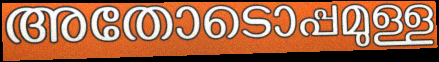
അതോടൊപ്പമുള്ള